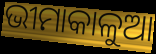
ଭୀମାକାଳୁଆ